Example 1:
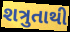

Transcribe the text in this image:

શત્રુતાથી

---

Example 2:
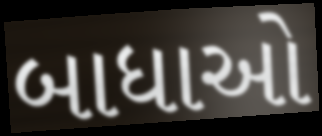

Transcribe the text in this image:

બાધાઓ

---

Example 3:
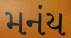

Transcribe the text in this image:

મનંય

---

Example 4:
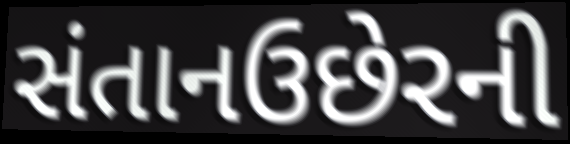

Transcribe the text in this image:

સંતાનઉછેરની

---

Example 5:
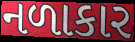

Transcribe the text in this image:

નળાકાર